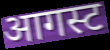
आगस्ट